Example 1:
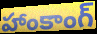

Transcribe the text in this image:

హాంకాంగ్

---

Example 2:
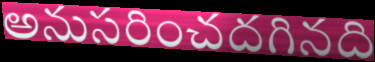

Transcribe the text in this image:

అనుసరించదగినది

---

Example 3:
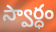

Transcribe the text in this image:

స్వార్ధం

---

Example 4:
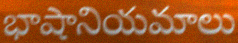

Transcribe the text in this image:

భాషానియమాలు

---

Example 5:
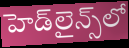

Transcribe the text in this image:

హెడ్‌లైన్స్‌లో